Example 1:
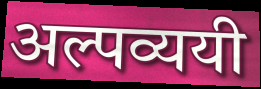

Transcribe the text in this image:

अल्पव्ययी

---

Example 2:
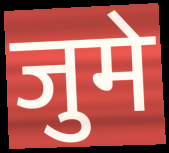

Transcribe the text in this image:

जुमे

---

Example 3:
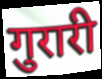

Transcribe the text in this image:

गुरारी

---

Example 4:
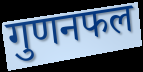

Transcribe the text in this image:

गुणनफल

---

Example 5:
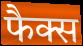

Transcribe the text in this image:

फैक्स